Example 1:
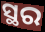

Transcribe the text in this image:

ସ୍ଥର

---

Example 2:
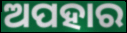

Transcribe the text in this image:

ଅପହାର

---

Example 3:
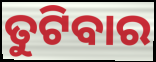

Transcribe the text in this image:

ତୁଟିବାର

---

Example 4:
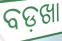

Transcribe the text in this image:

ବଡ଼ଖା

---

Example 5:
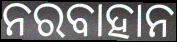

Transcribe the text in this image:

ନରବାହାନ